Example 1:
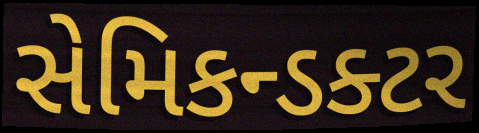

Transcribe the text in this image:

સેમિકન્ડક્ટર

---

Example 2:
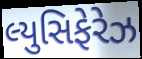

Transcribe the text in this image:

લ્યુસિફેરેઝ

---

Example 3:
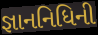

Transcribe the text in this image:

જ્ઞાનનિધિની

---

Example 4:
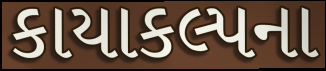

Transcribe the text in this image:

કાયાકલ્પના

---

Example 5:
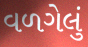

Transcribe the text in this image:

વળગેલું